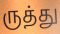
ருத்து